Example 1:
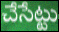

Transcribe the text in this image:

చేసేట్టు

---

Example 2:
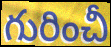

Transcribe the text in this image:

గురించీ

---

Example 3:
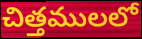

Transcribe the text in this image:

చిత్తములలో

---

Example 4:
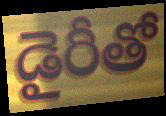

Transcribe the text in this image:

డైరీతో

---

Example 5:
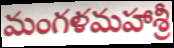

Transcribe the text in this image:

మంగళమహాశ్రీ